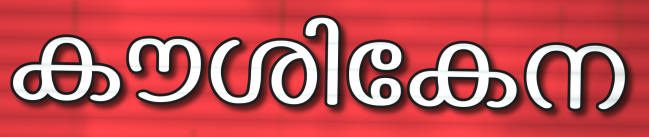
കൗശികേന